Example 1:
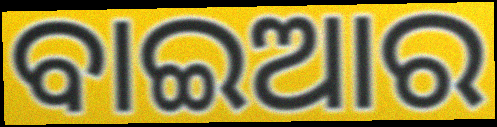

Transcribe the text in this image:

ବାଇଆର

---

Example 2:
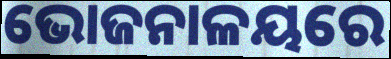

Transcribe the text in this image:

ଭୋଜନାଳୟରେ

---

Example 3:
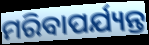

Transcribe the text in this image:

ମରିବାପର୍ଯ୍ୟନ୍ତ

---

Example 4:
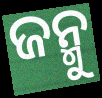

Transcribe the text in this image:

ଜନ୍ମୁ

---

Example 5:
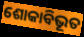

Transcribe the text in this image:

ଶୋକାବିଭୂତ